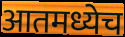
आतमध्येच